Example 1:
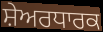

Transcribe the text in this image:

ਸ਼ੇਅਰਧਾਰਕ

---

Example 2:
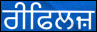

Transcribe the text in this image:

ਰੀਫਿਲਜ਼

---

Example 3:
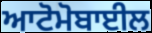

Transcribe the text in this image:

ਆਟੋਮੋਬਾਈਲ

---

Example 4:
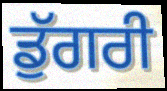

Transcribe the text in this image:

ਡੁੱਗਰੀ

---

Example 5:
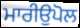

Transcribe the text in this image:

ਮਾਰੀਉਪੋਲ